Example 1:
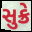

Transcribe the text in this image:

સુક્રે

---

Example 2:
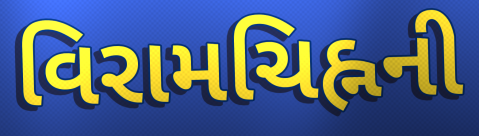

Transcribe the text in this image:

વિરામચિહ્નની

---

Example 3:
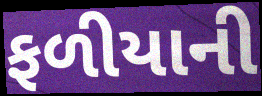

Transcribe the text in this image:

ફળીયાની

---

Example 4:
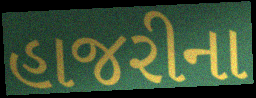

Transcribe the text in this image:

હાજરીના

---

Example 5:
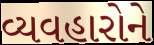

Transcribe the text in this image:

વ્યવહારોને